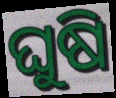
ଘୁଷି